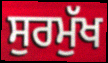
ਸੁਰਮੁੱਖ